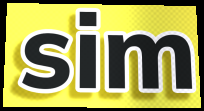
sim